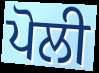
ਪੋਲੀ